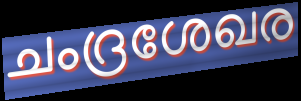
ചംദ്രശേഖര